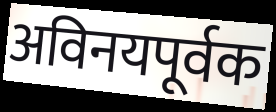
अविनयपूर्वक